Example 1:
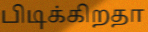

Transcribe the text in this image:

பிடிக்கிறதா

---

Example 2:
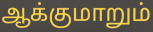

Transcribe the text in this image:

ஆக்குமாறும்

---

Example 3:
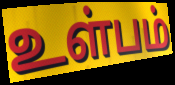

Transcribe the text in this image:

உள்பம்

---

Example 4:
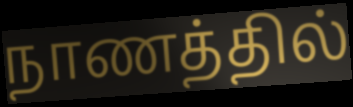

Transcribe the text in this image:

நாணத்தில்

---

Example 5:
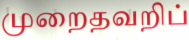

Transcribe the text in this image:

முறைதவறிப்